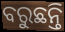
ବରୁଛନ୍ତି